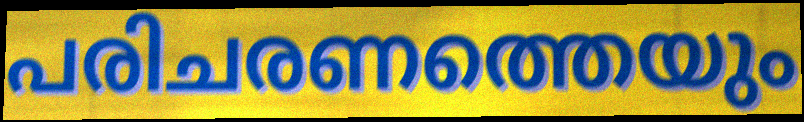
പരിചരണത്തെയും